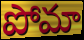
పోమా